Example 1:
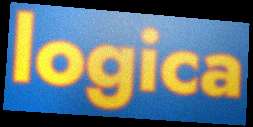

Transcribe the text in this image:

logica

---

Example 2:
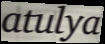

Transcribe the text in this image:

atulya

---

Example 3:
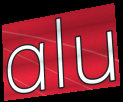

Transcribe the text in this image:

alu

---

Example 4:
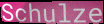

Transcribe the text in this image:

Schulze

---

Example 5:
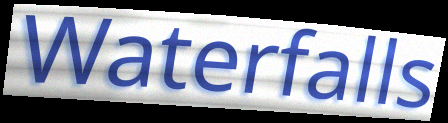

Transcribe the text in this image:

Waterfalls